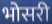
भोसरी